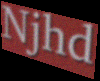
Njhd